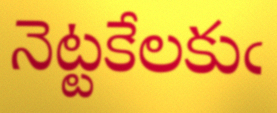
నెట్టకేలకుఁ